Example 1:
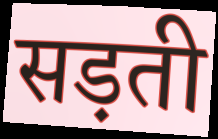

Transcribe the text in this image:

सड़ती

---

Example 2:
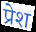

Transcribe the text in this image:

प्रेश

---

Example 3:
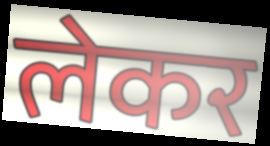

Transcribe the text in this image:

लेकर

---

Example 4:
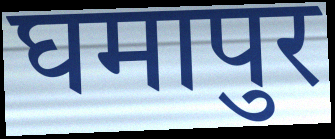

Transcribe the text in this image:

घमापुर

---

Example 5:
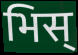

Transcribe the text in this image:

भिस्